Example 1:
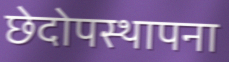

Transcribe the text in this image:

छेदोपस्थापना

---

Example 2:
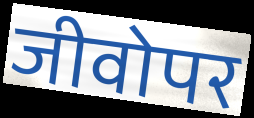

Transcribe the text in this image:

जीवोपर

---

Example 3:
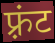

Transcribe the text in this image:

फ़्रंट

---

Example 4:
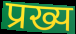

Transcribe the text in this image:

प्रख्य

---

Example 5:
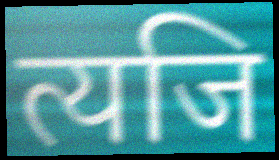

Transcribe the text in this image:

त्यजि